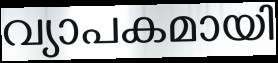
വ്യാപകമായി